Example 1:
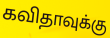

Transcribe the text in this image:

கவிதாவுக்கு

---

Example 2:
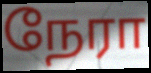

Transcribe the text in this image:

நேரா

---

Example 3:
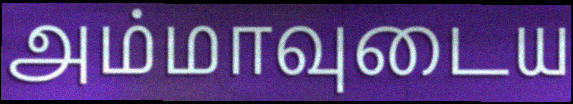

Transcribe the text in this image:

அம்மாவுடைய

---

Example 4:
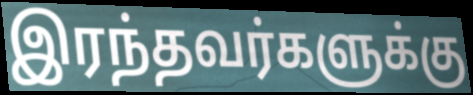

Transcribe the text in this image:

இரந்தவர்களுக்கு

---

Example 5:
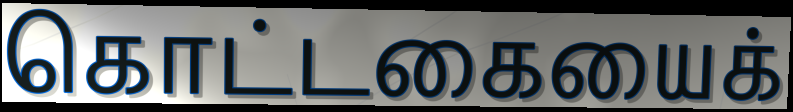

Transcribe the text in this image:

கொட்டகையைக்